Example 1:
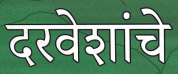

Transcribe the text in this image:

दरवेशांचे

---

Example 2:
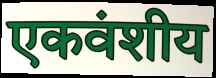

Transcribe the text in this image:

एकवंशीय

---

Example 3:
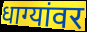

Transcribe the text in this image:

धाग्यांवर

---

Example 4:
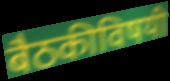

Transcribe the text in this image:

बैठकीविषयी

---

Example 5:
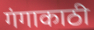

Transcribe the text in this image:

गंगाकाठी